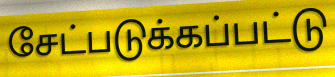
சேட்படுக்கப்பட்டு